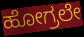
ಹೋಗ್ರಲೇ